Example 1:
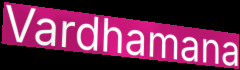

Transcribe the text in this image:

Vardhamana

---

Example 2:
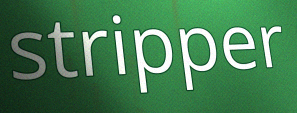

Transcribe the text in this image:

stripper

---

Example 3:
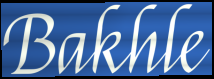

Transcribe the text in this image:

Bakhle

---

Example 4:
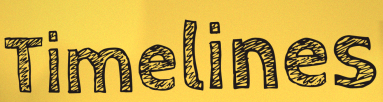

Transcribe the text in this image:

Timelines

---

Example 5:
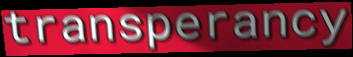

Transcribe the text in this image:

transperancy